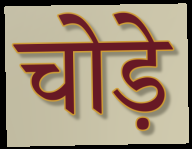
चोड़े